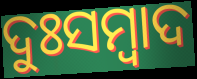
ଦୁଃସମ୍ବାଦ